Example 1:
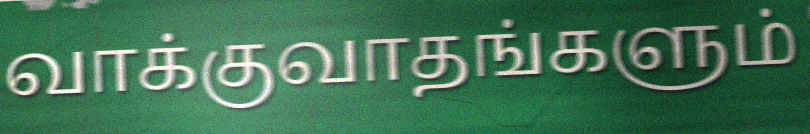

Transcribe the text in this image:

வாக்குவாதங்களும்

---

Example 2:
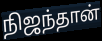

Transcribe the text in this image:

நிஜந்தான்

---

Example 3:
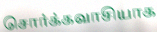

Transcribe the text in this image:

சொர்க்கவாசியாக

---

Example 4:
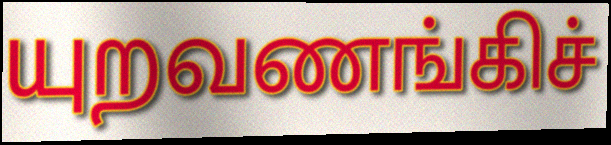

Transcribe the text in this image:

யுறவணங்கிச்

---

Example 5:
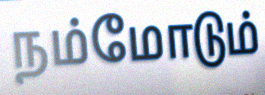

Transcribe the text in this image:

நம்மோடும்